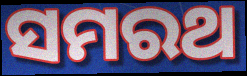
ସମରଥ